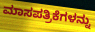
ಮಾಸಪತ್ರಿಕೆಗಳನ್ನು